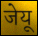
जेयू